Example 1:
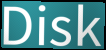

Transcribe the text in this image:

Disk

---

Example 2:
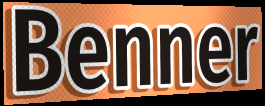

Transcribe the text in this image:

Benner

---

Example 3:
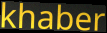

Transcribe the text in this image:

khaber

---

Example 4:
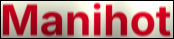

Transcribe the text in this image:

Manihot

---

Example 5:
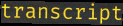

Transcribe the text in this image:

transcript